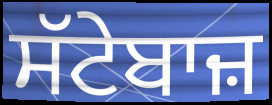
ਸੱਟੇਬਾਜ਼